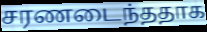
சரணடைந்ததாக